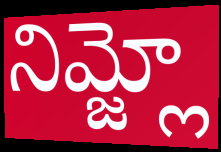
నిమ్జ్లో